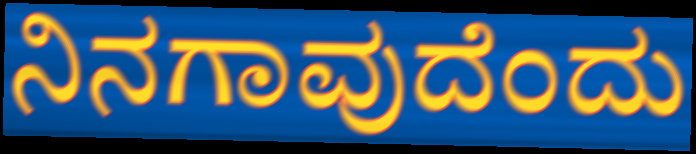
ನಿನಗಾವುದೆಂದು